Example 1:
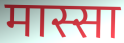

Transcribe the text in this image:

मास्सा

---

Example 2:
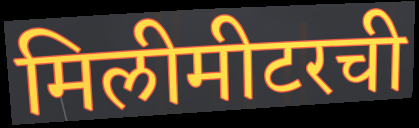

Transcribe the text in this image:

मिलीमीटरची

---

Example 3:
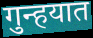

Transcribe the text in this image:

गुन्हयात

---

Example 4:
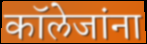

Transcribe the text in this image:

कॉलेजांना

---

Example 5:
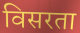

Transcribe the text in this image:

विसरता